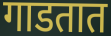
गाडतात